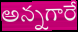
అన్నగారే